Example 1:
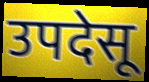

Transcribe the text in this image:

उपदेसू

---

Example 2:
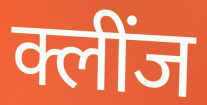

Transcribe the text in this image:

क्लींज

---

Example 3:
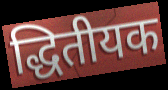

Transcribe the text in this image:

द्धितीयक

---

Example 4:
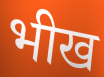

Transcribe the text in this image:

भीख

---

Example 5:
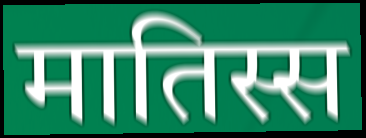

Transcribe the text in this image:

मातिस्स